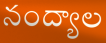
నంద్యాల